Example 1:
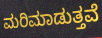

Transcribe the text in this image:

ಮರಿಮಾಡುತ್ತವೆ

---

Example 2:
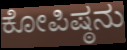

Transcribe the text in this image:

ಕೋಪಿಷ್ಠನು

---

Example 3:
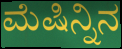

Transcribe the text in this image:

ಮೆಷಿನ್ನಿನ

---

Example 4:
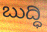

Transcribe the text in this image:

ಬುದ್ಧಿ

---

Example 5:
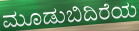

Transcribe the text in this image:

ಮೂಡುಬಿದಿರೆಯ